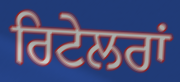
ਰਿਟੇਲਰਾਂ